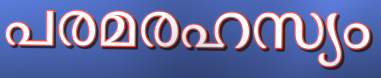
പരമരഹസ്യം